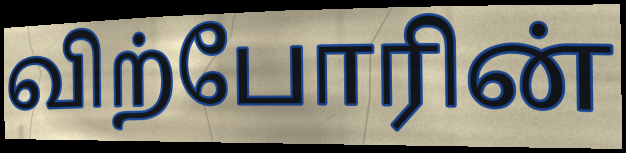
விற்போரின்